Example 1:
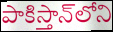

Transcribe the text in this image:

పాకిస్తాన్‌లోని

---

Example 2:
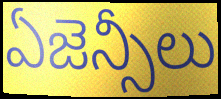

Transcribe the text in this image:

ఏజెన్సీలు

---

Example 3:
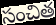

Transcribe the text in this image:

సంచిత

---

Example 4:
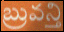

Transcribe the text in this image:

బ్రువన్తి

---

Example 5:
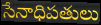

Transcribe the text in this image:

సేనాధిపతులు